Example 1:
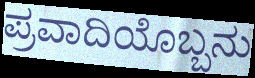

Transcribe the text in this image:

ಪ್ರವಾದಿಯೊಬ್ಬನು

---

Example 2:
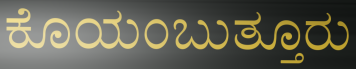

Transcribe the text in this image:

ಕೊಯಂಬುತ್ತೂರು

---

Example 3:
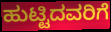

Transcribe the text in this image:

ಹುಟ್ಟಿದವರಿಗೆ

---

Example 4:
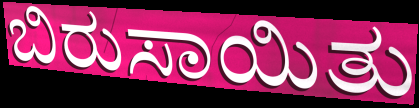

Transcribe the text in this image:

ಬಿರುಸಾಯಿತು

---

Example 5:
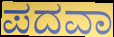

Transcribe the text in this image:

ಪದವಾ